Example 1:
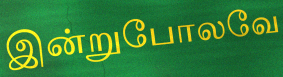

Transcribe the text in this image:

இன்றுபோலவே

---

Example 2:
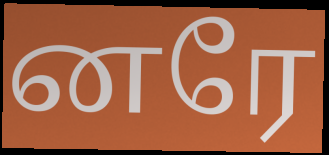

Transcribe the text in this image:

னரே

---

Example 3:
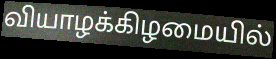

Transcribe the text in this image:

வியாழக்கிழமையில்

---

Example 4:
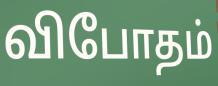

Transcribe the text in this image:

விபோதம்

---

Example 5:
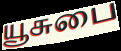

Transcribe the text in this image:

யூசுபை